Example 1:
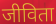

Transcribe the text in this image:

जीविता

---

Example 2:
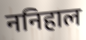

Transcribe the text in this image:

ननिहाल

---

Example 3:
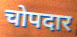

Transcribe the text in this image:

चोपदार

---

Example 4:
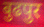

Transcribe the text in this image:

बुढपुर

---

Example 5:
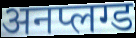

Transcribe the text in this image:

अनप्लग्ड